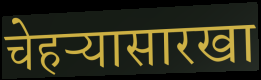
चेहऱ्यासारखा